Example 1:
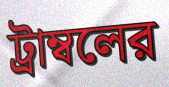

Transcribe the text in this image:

ট্রাম্বলের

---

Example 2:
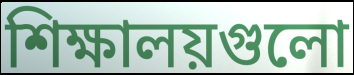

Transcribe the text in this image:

শিক্ষালয়গুলো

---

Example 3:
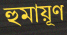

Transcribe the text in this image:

হুমায়ূণ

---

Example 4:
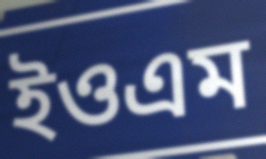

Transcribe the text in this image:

ইওএম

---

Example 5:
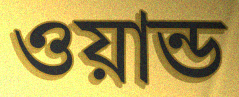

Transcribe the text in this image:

ওয়ান্ড